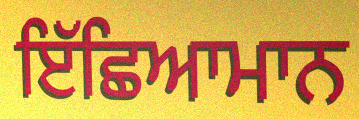
ਇੱਛਿਆਮਾਨ